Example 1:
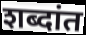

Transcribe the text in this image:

शब्दांत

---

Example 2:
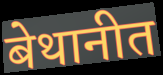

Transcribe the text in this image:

बेथानीत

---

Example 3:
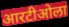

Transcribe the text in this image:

आरटीओला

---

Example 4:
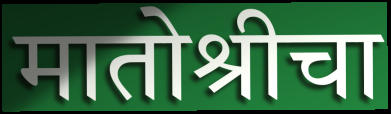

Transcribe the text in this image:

मातोश्रीचा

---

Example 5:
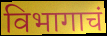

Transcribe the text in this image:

विभागाचं